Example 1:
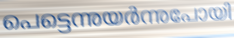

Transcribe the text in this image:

പെട്ടെന്നുയർന്നുപോയി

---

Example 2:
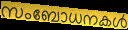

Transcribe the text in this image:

സംബോധനകൾ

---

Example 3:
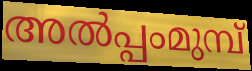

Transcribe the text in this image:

അൽപ്പംമുമ്പ്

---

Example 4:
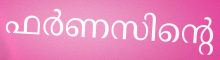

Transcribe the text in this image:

ഫർണസിന്റെ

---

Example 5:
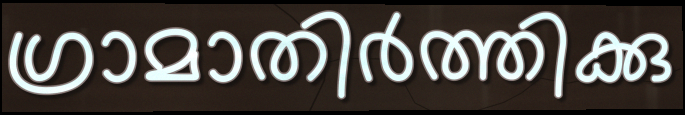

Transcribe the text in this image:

ഗ്രാമാതിർത്തിക്കു